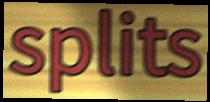
splits